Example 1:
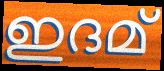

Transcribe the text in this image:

ഇദമ്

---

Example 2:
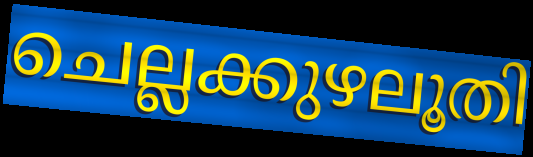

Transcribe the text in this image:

ചെല്ലക്കുഴലൂതി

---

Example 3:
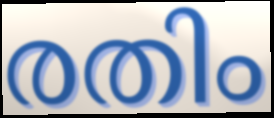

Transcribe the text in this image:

രതിം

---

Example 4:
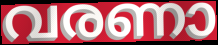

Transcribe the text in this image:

വരണാ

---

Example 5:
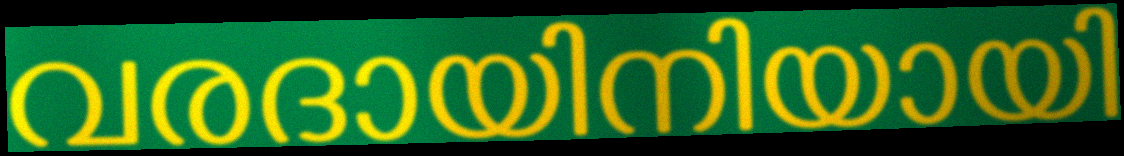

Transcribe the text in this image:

വരദായിനിയായി